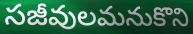
సజీవులమనుకొని